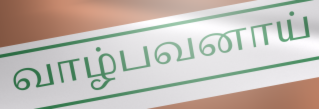
வாழ்பவனாய்